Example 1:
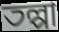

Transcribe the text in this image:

তল্পা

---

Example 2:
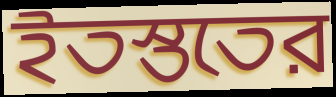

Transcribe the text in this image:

ইতস্ততের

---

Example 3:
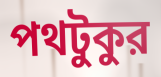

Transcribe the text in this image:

পথটুকুর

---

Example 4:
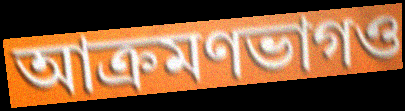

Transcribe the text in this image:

আক্রমণভাগও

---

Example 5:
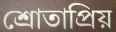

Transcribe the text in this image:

শ্রোতাপ্রিয়